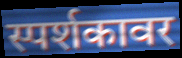
स्पर्शकावर